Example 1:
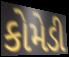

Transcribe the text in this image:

કોમેડી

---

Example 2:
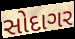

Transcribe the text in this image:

સોદાગર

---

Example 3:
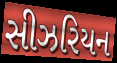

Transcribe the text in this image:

સીઝરિયન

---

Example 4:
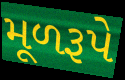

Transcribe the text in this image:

મૂળરૂપે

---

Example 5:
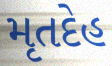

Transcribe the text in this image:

મૃતદેહ